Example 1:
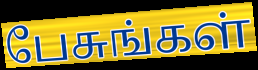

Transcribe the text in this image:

பேசுங்கள்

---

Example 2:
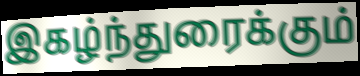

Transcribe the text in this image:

இகழ்ந்துரைக்கும்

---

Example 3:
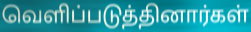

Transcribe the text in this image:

வெளிப்படுத்தினார்கள்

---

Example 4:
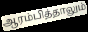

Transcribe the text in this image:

ஆரம்பித்தாலும்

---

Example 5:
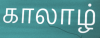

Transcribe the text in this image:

காலாழ்